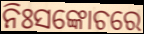
ନିଃସଙ୍କୋଚରେ